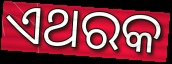
ଏଥରକ